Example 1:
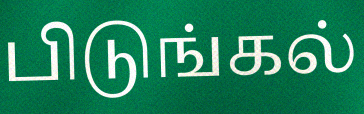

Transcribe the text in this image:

பிடுங்கல்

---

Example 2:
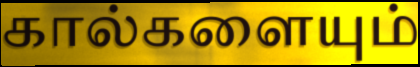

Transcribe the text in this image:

கால்களையும்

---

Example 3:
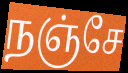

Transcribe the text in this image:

நஞ்சே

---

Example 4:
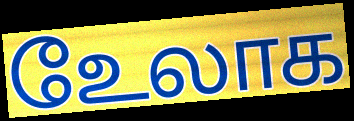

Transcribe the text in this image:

உேலாக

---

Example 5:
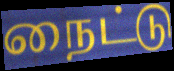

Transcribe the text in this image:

நைட்டு